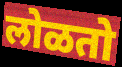
लोळतो